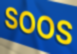
SOOS